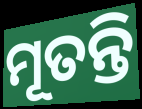
ମୂତନ୍ତି